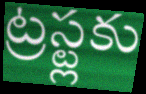
ట్రస్ట్లకు